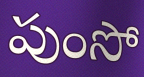
పుంసో